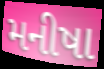
મનીષા